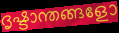
ദൃഷ്ടാന്തങ്ങളോ